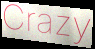
Crazy